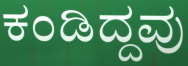
ಕಂಡಿದ್ದವು